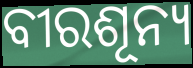
ବୀରଶୂନ୍ୟ